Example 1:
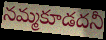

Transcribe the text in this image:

నమ్మకూడదనీ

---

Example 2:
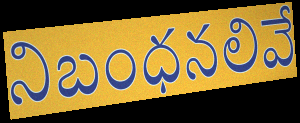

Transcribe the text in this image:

నిబంధనలివే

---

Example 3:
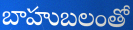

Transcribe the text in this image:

బాహుబలంతో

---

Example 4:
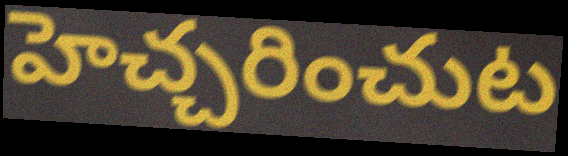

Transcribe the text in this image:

హెచ్చరించుట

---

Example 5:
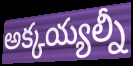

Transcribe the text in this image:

అక్కయ్యల్నీ